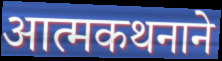
आत्मकथनाने